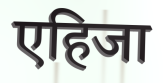
एहिजा